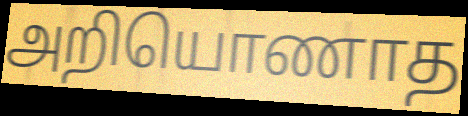
அறியொணாத